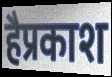
हैप्रकाश